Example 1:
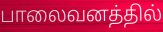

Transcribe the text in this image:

பாலைவனத்தில்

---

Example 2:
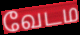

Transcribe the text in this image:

வேடம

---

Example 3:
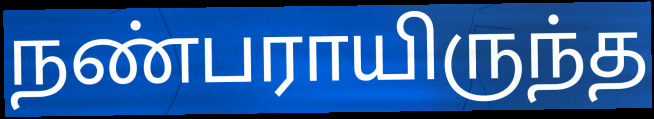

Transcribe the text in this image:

நண்பராயிருந்த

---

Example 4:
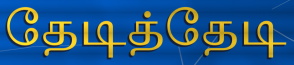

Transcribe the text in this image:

தேடித்தேடி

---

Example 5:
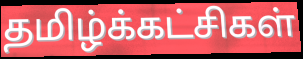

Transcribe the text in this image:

தமிழ்க்கட்சிகள்